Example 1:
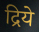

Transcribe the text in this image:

द्रिये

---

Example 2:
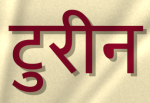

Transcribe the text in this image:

टुरीन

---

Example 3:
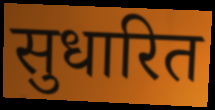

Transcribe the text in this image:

सुधारित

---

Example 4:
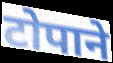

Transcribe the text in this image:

टोपाने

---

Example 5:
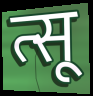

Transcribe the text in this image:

त्सू